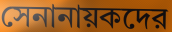
সেনানায়কদের